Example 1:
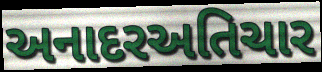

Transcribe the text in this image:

અનાદરઅતિચાર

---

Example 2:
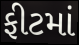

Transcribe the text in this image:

ફીટમાં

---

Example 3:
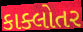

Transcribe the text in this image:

કાક્લોતર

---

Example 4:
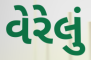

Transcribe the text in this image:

વેરેલું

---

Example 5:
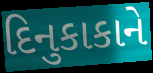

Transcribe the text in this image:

દિનુકાકાને